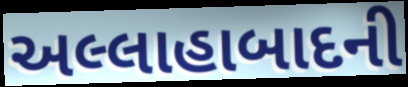
અલ્લાહાબાદની